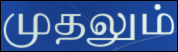
முதலும்